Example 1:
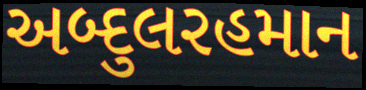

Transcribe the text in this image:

અબ્દુલરહમાન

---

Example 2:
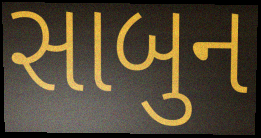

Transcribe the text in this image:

સાબુન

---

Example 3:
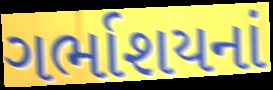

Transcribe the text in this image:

ગર્ભાશયનાં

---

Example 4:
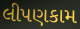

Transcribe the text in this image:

લીપણકામ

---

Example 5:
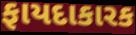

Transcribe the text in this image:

ફાયદાકારક